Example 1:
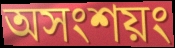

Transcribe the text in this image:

অসংশয়ং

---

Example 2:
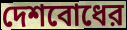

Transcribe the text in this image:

দেশবোধের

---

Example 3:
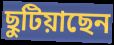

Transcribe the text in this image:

ছুটিয়াছেন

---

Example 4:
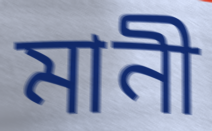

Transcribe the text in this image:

মানী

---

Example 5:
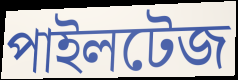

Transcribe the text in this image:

পাইলটেজ